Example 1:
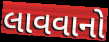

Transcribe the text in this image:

લાવવાનો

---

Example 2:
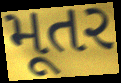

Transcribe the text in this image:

મૂતર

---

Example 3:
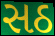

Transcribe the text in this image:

સઠ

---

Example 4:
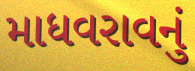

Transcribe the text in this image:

માધવરાવનું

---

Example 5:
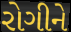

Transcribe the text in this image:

રોગીને